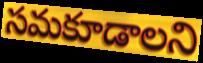
సమకూడాలని